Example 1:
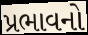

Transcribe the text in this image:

પ્રભાવનો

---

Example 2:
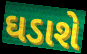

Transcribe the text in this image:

ઘડાશે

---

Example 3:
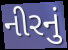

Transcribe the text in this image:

નીરનું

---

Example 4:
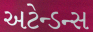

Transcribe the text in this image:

અટેન્ડન્સ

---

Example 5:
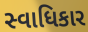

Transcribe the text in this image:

સ્વાધિકાર